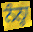
ਨੰਨ੍ਹਾ